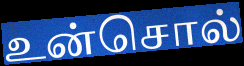
உன்சொல்